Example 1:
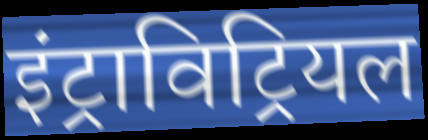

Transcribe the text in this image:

इंट्राविट्रियल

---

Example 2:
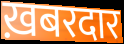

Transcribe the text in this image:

ख़बरदार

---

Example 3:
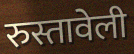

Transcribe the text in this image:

रुस्तावेली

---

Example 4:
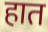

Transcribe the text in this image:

हात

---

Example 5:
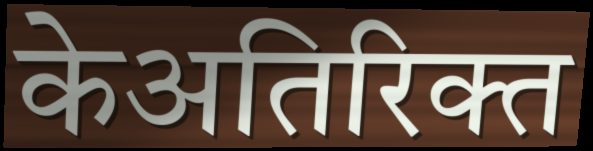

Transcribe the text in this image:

केअतिरिक्त